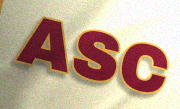
ASC